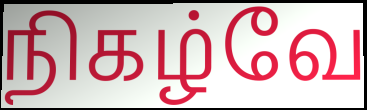
நிகழ்வே